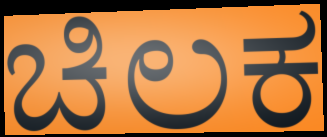
ಚಿಲಕ